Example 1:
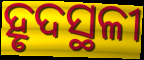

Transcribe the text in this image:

ହୃଦସ୍ଥଳୀ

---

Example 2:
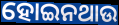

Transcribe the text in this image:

ହୋଇନଥାଉ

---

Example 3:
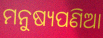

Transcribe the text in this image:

ମନୁଷ୍ୟପଣିଆ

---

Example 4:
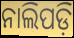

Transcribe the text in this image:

ନାଲିପଡ଼ି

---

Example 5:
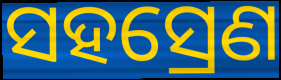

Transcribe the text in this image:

ସହସ୍ରେଣ